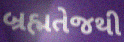
બ્રહ્મતેજથી